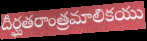
దీర్ఘతరాంత్రమాలికయు